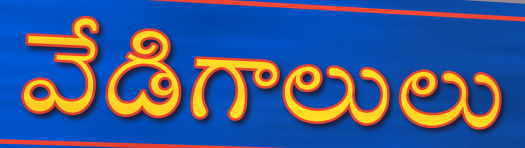
వేడిగాలులు